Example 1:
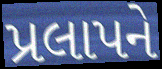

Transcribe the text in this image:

પ્રલાપને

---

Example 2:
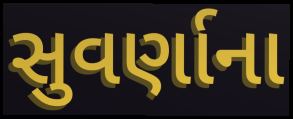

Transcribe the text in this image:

સુવર્ણાના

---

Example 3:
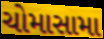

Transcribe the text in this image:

ચોમાસામા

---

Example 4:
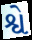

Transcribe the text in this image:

શ્વે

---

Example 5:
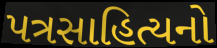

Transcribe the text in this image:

પત્રસાહિત્યનો